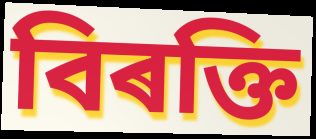
বিৰক্তি